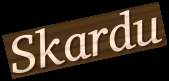
Skardu